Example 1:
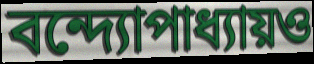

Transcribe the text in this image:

বন্দ্যোপাধ্যায়ও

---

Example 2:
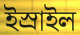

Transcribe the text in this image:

ইস্রাইল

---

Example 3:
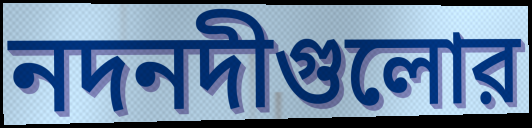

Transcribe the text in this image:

নদনদীগুলোর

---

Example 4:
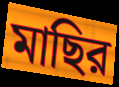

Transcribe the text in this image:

মাছির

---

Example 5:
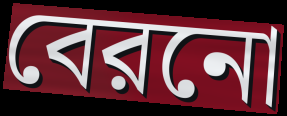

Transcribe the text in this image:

বেরনো